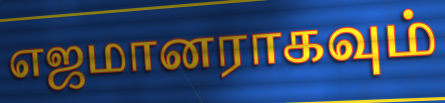
எஜமானராகவும்